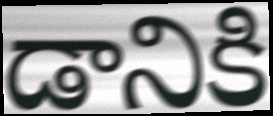
డానికి